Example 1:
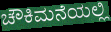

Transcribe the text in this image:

ಚೌಕಿಮನೆಯಲ್ಲಿ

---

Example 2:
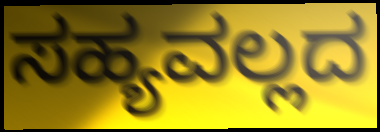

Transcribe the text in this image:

ಸಹ್ಯವಲ್ಲದ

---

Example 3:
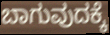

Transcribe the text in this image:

ಬಾಗುವುದಕ್ಕೆ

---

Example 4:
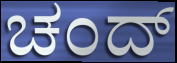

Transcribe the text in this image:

ಚಂದ್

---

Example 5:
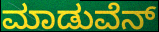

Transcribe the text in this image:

ಮಾಡುವೆನ್